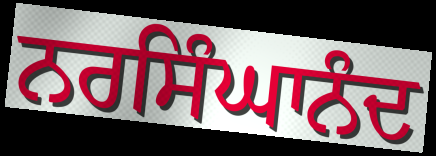
ਨਰਸਿੰਘਾਨੰਦ